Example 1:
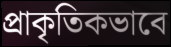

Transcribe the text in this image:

প্রাকৃতিকভাবে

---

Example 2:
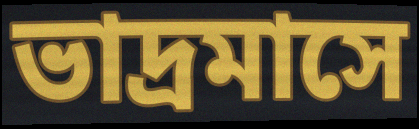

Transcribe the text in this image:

ভাদ্রমাসে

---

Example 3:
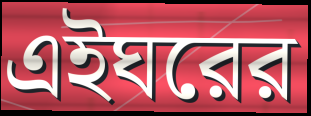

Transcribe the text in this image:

এইঘরের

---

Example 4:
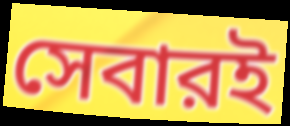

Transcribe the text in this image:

সেবারই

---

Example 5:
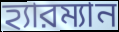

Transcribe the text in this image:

হ্যারম্যান